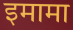
इमामा